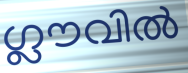
ഗ്ലൗവിൽ